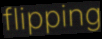
flipping